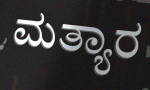
ಮತ್ಯಾರ